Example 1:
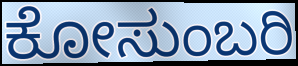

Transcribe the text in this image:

ಕೋಸುಂಬರಿ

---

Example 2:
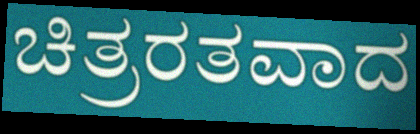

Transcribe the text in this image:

ಚಿತ್ರರತವಾದ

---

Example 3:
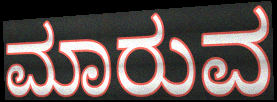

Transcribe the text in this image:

ಮಾರುವ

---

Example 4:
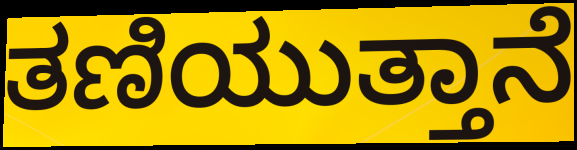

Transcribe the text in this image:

ತಣಿಯುತ್ತಾನೆ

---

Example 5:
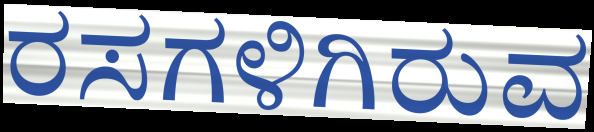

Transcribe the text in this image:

ರಸಗಳಿಗಿರುವ